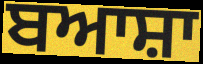
ਬਆਸ਼ਾ